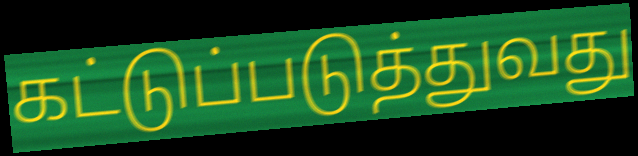
கட்டுப்படுத்துவது